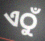
ଏଠୁଁ